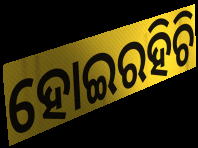
ହୋଇରହିଚି